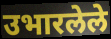
उभारलेले